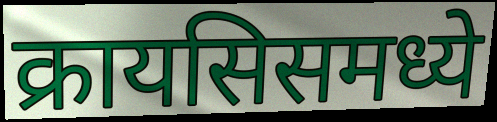
क्रायसिसमध्ये